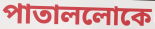
পাতাললোকে